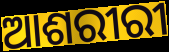
ଆଶରୀରୀ